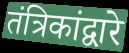
तंत्रिकांद्वारे